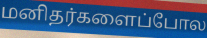
மனிதர்களைப்போல